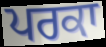
ਪਰਕਾ